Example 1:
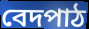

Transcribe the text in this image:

বেদপাঠ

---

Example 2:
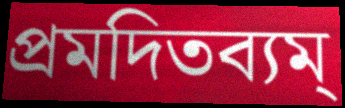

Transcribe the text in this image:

প্রমদিতব্যম্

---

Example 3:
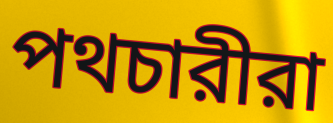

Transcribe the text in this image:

পথচারীরা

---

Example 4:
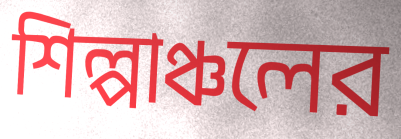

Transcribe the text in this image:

শিল্পাঞ্চলের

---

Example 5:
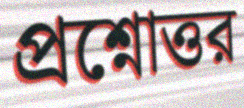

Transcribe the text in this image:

প্রশ্নোত্তর